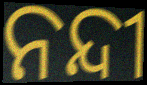
ନନ୍ଦୀ